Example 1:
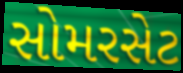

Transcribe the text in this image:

સોમરસેટ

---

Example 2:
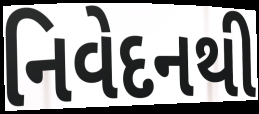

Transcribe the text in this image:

નિવેદનથી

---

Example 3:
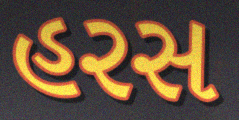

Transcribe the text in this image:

હરસ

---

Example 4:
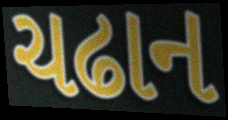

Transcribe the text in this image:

ચઢાન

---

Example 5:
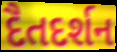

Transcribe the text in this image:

દૈતદર્શન